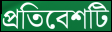
প্রতিবেশটি